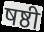
षष्ठी